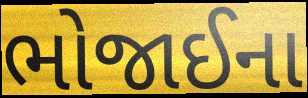
ભોજાઈના